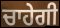
ਚਾਹੇਗੀ